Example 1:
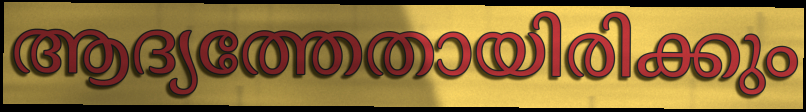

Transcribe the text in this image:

ആദ്യത്തേതായിരിക്കും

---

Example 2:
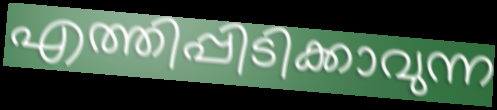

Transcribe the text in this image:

എത്തിപ്പിടിക്കാവുന്ന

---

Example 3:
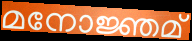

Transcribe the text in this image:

മനോജ്ഞമ്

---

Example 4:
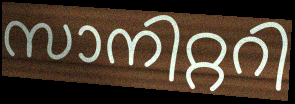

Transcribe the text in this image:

സാനിറ്ററി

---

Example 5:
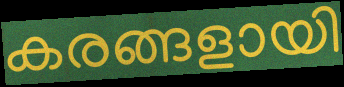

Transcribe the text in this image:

കരങ്ങളായി